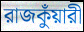
রাজকুঁয়ারী